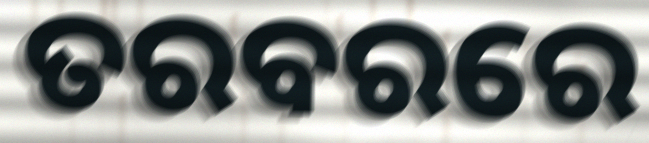
ତରବରରେ